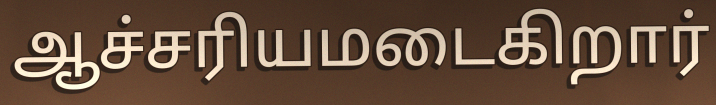
ஆச்சரியமடைகிறார்